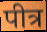
पीत्र